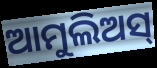
ଆମୁଲିଅସ୍